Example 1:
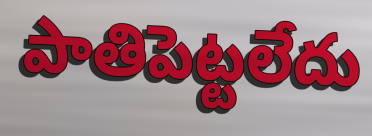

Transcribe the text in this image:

పాతిపెట్టలేదు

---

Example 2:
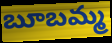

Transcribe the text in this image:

బూబమ్మ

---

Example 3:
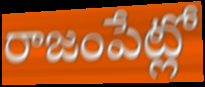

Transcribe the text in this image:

రాజంపేట్లో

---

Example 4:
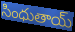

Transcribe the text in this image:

సింధుతాయ్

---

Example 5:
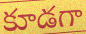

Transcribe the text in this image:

కూడగా